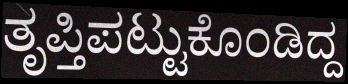
ತೃಪ್ತಿಪಟ್ಟುಕೊಂಡಿದ್ದ